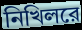
নিখিলরে